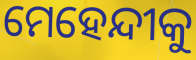
ମେହେନ୍ଦୀକୁ